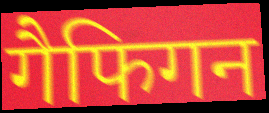
गैफिगन